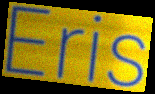
Eris